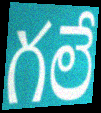
గలే